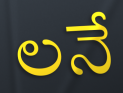
లనే